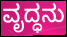
ವೃದ್ಧನು